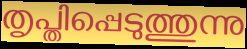
തൃപ്തിപ്പെടുത്തുന്നു